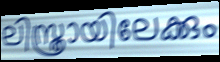
ലിസ്ത്രായിലേക്കും